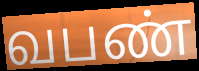
வபண்